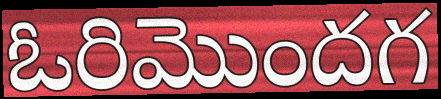
ఓరిమొందగ